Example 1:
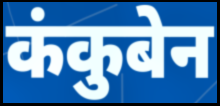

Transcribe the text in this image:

कंकुबेन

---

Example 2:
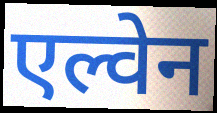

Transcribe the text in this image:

एल्वेन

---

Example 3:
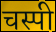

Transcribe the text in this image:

चस्पी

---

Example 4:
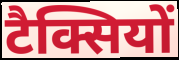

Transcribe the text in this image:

टैक्सियों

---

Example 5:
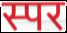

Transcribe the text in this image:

स्पर